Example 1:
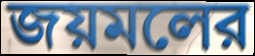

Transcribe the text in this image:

জয়মলের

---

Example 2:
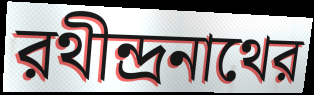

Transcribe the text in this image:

রথীন্দ্রনাথের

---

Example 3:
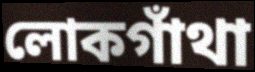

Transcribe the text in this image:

লোকগাঁথা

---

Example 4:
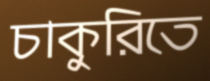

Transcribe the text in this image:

চাকুরিতে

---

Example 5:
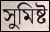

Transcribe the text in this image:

সুমিষ্ট